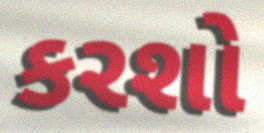
કરશો